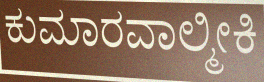
ಕುಮಾರವಾಲ್ಮೀಕಿ